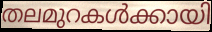
തലമുറകൾക്കായി